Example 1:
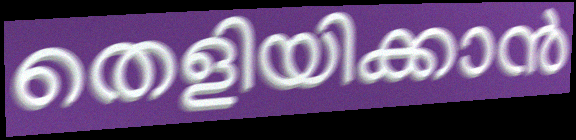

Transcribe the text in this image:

തെളിയിക്കാൻ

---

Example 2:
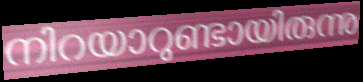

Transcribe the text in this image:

നിറയാറുണ്ടായിരുന്നു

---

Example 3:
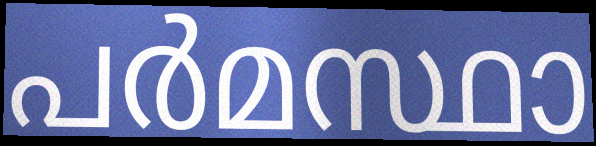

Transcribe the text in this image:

പർമസ്ഥാ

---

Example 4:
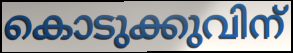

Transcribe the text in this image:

കൊടുക്കുവിന്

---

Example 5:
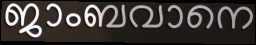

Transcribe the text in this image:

ജാംബവാനെ